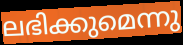
ലഭിക്കുമെന്നു